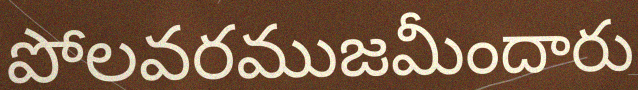
పోలవరముజమీందారు